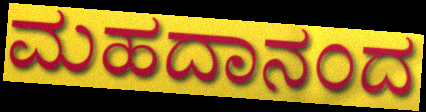
ಮಹದಾನಂದ